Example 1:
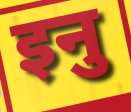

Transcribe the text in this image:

इनु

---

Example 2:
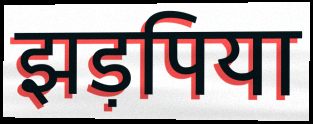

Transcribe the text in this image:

झड़पिया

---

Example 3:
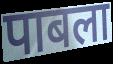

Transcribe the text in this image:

पाबला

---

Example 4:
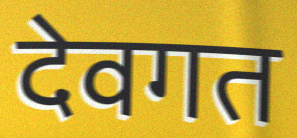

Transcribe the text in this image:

देवगत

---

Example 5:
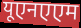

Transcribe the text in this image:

यूएनएएम